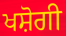
ਖਸ਼ੋਗੀ